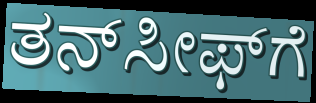
ತನ್‍ಸೀಫ್‍ಗೆ